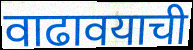
वाढावयाची